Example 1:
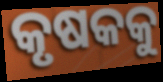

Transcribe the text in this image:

କୃଷକକୁ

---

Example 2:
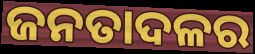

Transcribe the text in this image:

ଜନତାଦଳର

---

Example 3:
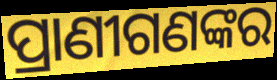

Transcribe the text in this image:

ପ୍ରାଣୀଗଣଙ୍କର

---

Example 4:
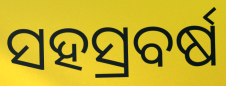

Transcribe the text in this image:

ସହସ୍ରବର୍ଷ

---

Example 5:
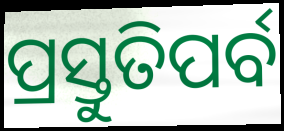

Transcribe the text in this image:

ପ୍ରସ୍ତୁତିପର୍ବ